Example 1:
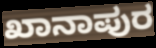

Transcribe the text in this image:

ಖಾನಾಪುರ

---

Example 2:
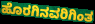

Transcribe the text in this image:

ಹೊರಗಿನವರಿಗಿಂತ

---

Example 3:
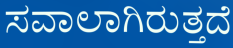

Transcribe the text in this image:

ಸವಾಲಾಗಿರುತ್ತದೆ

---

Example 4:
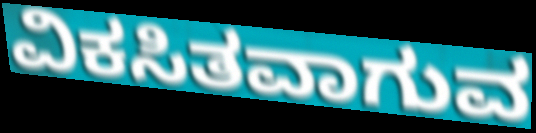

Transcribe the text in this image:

ವಿಕಸಿತವಾಗುವ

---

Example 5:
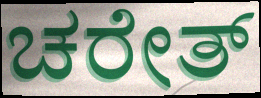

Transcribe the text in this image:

ಚರೇತ್